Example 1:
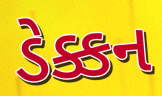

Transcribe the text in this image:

ડેક્કન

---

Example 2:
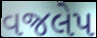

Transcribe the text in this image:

વજ્રલેપ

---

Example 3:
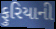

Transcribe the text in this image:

ફુરિયાની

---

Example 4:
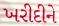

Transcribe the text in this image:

ખરીદીને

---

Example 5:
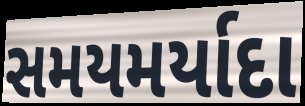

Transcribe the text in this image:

સમયમર્યાદા